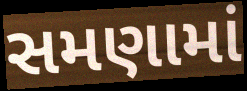
સમણામાં